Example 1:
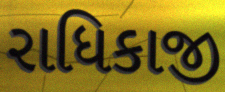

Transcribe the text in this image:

રાધિકાજી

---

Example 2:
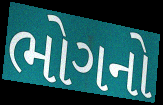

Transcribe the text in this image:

ભોગનો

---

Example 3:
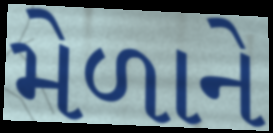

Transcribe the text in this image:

મેળાને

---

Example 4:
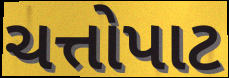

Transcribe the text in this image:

ચત્તોપાટ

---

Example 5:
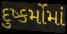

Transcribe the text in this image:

દુષ્કર્મોમાં